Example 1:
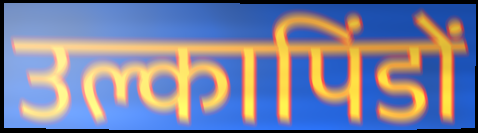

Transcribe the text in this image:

उल्कापिंडों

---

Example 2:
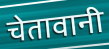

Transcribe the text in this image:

चेतावानी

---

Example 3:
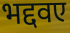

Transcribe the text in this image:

भद्दवए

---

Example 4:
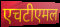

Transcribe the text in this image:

एचटीएमल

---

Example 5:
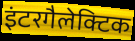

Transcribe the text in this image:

इंटरगैलेक्टिक